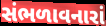
સંભળાવનારાં